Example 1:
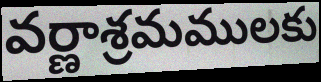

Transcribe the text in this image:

వర్ణాశ్రమములకు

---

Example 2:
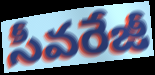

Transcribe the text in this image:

సీవరేజీ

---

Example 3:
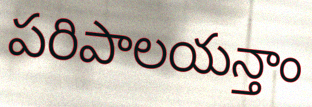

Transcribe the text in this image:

పరిపాలయన్తాం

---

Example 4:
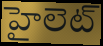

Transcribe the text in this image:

హైలెట్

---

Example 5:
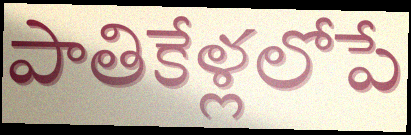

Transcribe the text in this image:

పాతికేళ్లలోపే